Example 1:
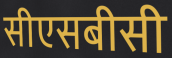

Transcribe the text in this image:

सीएसबीसी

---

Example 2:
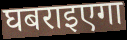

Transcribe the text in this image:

घबराइएगा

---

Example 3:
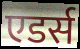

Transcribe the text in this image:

एडर्स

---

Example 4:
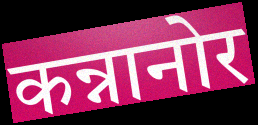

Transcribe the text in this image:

कन्नानोर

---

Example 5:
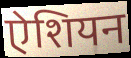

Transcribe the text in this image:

ऐशियन